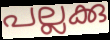
പല്ലക്കു